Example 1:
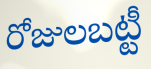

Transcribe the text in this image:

రోజులబట్టీ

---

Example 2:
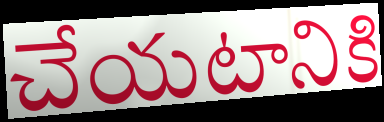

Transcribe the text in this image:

చేయటానికి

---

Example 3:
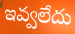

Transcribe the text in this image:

ఇవ్వలేదు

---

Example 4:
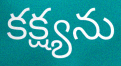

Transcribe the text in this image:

కక్ష్యను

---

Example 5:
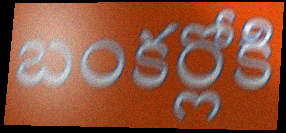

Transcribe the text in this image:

బంకర్లోకి